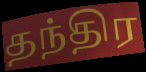
தந்திர